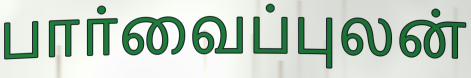
பார்வைப்புலன்